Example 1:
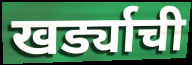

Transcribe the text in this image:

खर्ड्याची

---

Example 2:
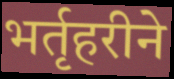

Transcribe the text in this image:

भर्तृहरीने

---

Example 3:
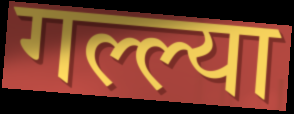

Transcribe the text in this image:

गल्ल्या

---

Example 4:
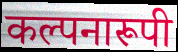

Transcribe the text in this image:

कल्पनारूपी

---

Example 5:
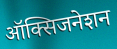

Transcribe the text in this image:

ऑक्सिजनेशन